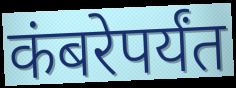
कंबरेपर्यंत